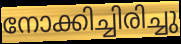
നോക്കിച്ചിരിച്ചു